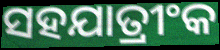
ସହଯାତ୍ରୀଂକ